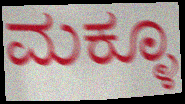
ಮಕ್ಳೂ